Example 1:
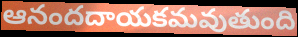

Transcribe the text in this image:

ఆనందదాయకమవుతుంది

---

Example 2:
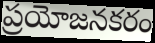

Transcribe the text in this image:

ప్రయోజనకరం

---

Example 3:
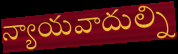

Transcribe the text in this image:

న్యాయవాదుల్ని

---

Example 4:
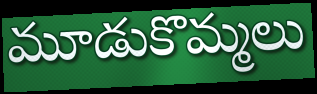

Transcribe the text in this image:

మూడుకొమ్మలు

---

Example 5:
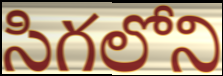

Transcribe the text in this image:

సిగలోని